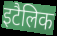
इटैलिक